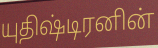
யுதிஷ்டிரனின்